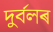
দুৰ্বলৰ